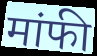
मांफी